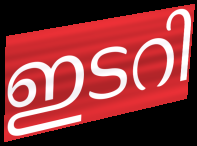
ഇടറി